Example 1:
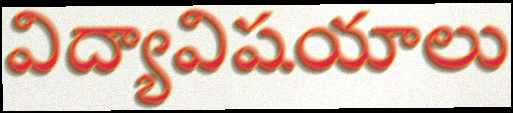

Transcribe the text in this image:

విద్యావిషయాలు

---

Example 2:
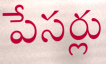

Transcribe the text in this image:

పేసర్లు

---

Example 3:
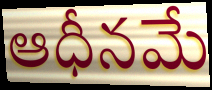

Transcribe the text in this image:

ఆధీనమే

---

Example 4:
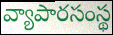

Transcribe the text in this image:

వ్యాపారసంస్థ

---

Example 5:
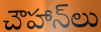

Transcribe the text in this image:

చౌహాన్‌లు